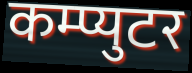
कम्प्युटर